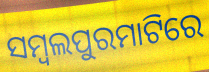
ସମ୍ବଲପୁରମାଟିରେ